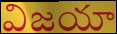
విజయా